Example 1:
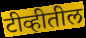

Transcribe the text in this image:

टीव्हीतील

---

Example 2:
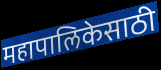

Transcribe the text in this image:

महापालिकेसाठी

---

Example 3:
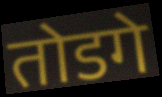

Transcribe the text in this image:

तोडगे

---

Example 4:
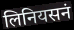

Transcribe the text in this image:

लिनियसनं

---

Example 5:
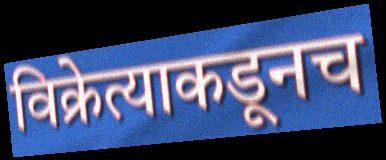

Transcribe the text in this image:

विक्रेत्याकडूनच